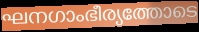
ഘനഗാംഭീര്യത്തോടെ